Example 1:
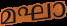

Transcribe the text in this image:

മഘാ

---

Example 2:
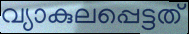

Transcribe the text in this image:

വ്യാകുലപ്പെട്ടത്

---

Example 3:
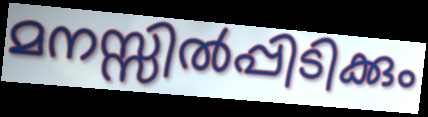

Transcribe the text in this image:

മനസ്സിൽപ്പിടിക്കും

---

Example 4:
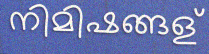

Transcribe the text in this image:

നിമിഷങ്ങള്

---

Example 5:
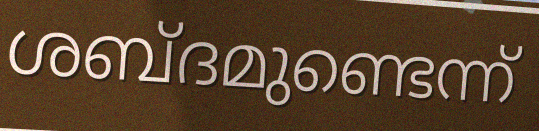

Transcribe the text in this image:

ശബ്ദമുണ്ടെന്ന്